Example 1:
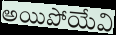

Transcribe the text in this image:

అయిపోయేవి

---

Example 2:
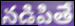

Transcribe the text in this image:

నడిపితే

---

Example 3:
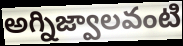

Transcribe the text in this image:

అగ్నిజ్వాలవంటి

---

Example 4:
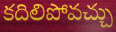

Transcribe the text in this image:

కదిలిపోవచ్చు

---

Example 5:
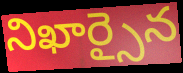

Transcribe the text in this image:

నిఖార్సైన